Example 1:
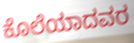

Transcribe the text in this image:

ಕೊಲೆಯಾದವರ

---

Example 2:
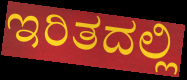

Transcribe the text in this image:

ಇರಿತದಲ್ಲಿ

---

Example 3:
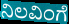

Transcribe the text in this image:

ನಿಲವಿಂಗೆ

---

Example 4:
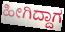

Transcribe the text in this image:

ಹೀಗಿದ್ದಾಗ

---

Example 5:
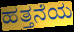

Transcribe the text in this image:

ಹತ್ತನೆಯ